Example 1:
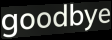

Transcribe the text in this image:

goodbye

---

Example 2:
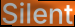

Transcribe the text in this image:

Silent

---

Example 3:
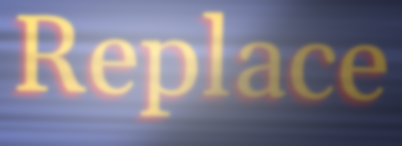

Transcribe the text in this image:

Replace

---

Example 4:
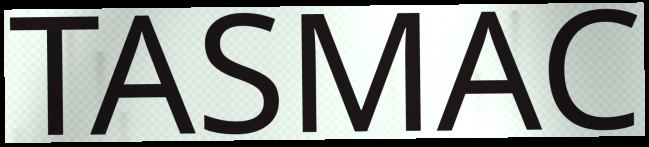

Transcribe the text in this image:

TASMAC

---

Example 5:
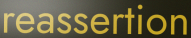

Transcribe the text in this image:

reassertion